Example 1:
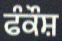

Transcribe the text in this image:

ਫੰਕੌਸ਼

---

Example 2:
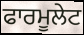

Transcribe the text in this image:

ਫਾਰਮੂਲੇਟ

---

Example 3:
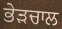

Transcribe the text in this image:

ਭੇੜਚਾਲ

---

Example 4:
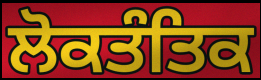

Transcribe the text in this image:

ਲੋਕਤੰਤਿਕ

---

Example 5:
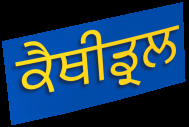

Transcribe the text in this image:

ਕੈਥੀਡ੍ਰਲ